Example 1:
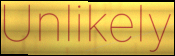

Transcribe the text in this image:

Unlikely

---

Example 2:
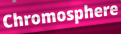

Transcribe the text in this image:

Chromosphere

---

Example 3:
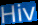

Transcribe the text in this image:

Hiv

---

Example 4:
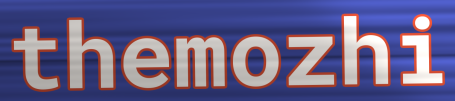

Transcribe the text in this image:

themozhi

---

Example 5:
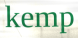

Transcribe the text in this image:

kemp